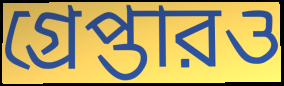
গ্রেপ্তারও